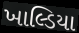
ખાલ્ડિયા